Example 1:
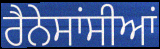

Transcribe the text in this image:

ਰੈਨੇਸਾਂਸੀਆਂ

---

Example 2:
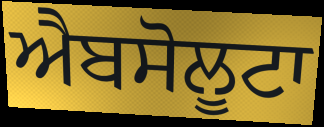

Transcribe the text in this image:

ਐਬਸੋਲੂਟਾ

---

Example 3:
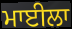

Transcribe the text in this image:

ਮਾਈਲਾ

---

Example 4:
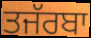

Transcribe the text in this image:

ਤਜੱਰਬਾ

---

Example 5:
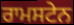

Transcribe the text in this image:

ਰਾਮਸਟੇਨ